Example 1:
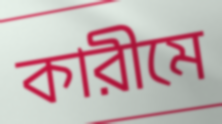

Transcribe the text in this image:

কারীমে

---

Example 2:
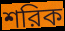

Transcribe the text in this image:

শরিক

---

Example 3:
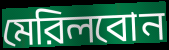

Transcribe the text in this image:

মেরিলবোন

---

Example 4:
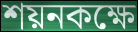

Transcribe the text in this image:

শয়নকক্ষে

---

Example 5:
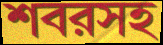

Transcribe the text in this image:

শবরসহ